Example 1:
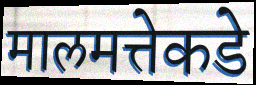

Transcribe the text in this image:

मालमत्तेकडे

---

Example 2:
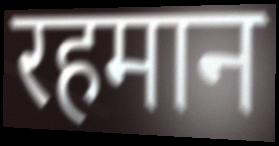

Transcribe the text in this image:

रहमान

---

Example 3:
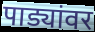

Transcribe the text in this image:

पाड्यांवर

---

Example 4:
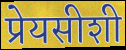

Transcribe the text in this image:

प्रेयसीशी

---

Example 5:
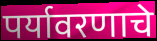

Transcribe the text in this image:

पर्यावरणाचे